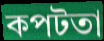
কপটতা